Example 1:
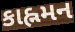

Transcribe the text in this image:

કાહ્નમન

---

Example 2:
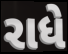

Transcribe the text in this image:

રાધે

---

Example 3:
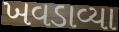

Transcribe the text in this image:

ખવડાવ્યા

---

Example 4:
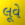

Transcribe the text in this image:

લૂવે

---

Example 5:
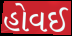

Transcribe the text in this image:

હોવઈ